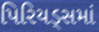
પિરિયડ્સમાં